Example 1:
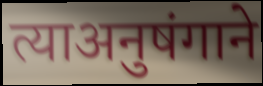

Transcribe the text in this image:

त्याअनुषंगाने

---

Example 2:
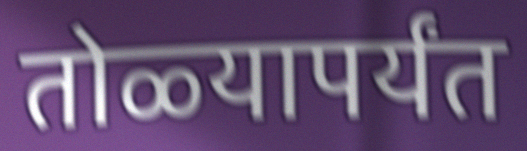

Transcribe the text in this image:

तोळ्यापर्यंत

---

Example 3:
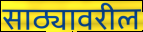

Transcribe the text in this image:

साठ्यावरील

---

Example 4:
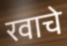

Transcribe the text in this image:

रवाचे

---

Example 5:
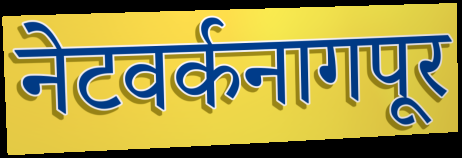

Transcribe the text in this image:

नेटवर्कनागपूर